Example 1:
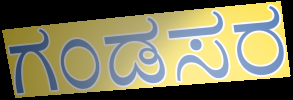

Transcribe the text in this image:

ಗಂಡಸರ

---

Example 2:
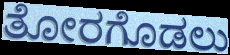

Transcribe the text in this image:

ತೋರಗೊಡಲು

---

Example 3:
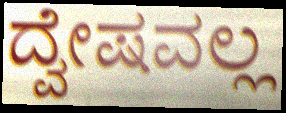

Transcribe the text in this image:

ದ್ವೇಷವಲ್ಲ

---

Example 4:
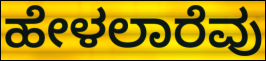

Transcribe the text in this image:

ಹೇಳಲಾರೆವು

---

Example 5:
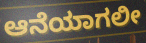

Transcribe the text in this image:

ಆನೆಯಾಗಲೀ